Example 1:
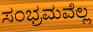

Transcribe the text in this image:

ಸಂಭ್ರಮವೆಲ್ಲ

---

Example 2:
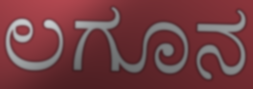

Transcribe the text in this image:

ಲಗೂನ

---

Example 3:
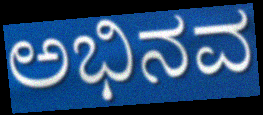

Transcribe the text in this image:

ಅಭಿನವ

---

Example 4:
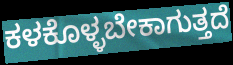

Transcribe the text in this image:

ಕಳಕೊಳ್ಳಬೇಕಾಗುತ್ತದೆ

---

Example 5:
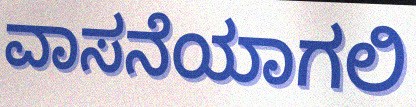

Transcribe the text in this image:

ವಾಸನೆಯಾಗಲಿ